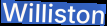
Williston